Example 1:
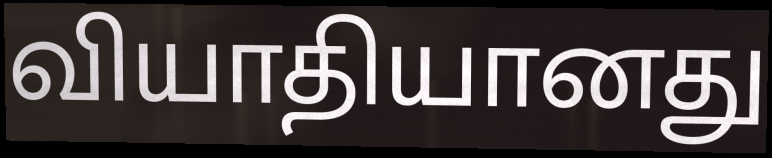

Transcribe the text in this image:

வியாதியானது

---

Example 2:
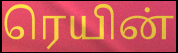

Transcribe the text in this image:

ரெயின்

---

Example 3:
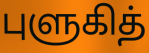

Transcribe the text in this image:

புளுகித்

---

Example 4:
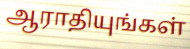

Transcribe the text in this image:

ஆராதியுங்கள்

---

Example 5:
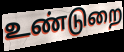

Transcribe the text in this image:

உண்டுறை